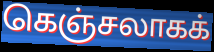
கெஞ்சலாகக்